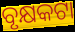
ବୃକ୍ଷକଟା